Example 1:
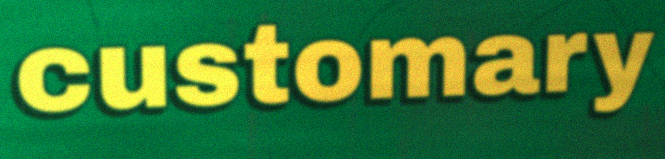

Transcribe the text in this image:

customary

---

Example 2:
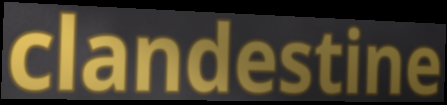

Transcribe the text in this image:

clandestine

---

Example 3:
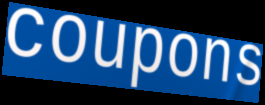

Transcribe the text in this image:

coupons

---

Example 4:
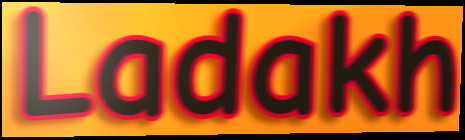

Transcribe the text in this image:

Ladakh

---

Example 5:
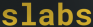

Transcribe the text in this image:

slabs